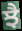
ਝੈ